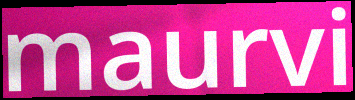
maurvi